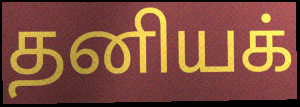
தனியக்